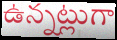
ఉన్నట్లుగా